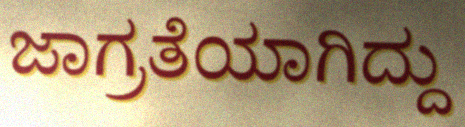
ಜಾಗ್ರತೆಯಾಗಿದ್ದು